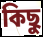
কিছু